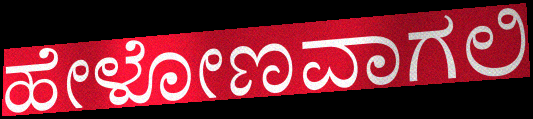
ಹೇಳೋಣವಾಗಲಿ